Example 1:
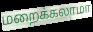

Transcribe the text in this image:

மறைக்கலாமா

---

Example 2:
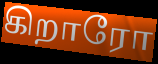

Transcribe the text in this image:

கிறாரோ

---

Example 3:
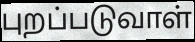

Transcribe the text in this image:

புறப்படுவாள்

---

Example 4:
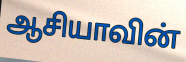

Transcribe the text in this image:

ஆசியாவின்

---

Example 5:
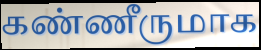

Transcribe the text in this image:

கண்ணீருமாக